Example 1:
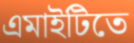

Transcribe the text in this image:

এমাইটিতে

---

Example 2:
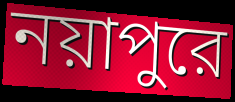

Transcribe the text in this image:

নয়াপুরে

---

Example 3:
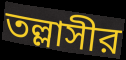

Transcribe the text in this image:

তল্লাসীর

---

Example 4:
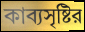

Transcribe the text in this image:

কাব্যসৃষ্টির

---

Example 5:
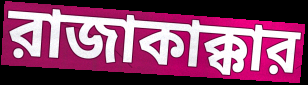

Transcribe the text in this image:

রাজাকাক্কার